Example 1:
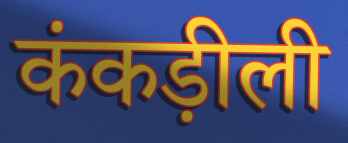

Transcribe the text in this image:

कंकड़ीली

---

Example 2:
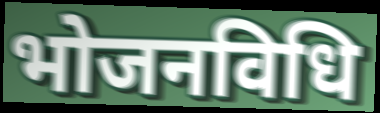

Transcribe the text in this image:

भोजनविधि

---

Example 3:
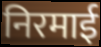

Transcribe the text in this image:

निरमाई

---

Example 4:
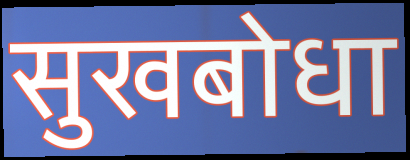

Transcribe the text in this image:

सुखबोधा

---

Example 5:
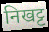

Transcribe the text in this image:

निखट्ट